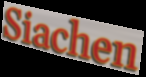
Siachen